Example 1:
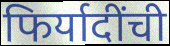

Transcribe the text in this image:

फिर्यादींची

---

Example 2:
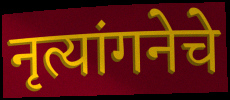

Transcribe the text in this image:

नृत्यांगनेचे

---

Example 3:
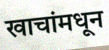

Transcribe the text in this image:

खाचांमधून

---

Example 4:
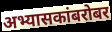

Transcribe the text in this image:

अभ्यासकांबरोबर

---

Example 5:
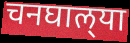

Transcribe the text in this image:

चनघाल्या